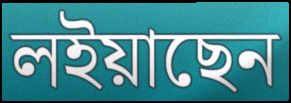
লইয়াছেন